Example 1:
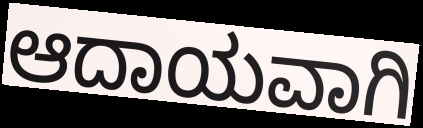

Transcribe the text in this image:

ಆದಾಯವಾಗಿ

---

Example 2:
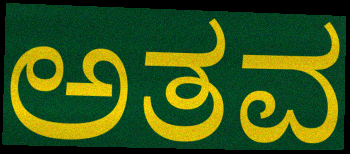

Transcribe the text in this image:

ಅತವ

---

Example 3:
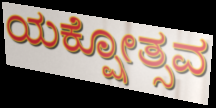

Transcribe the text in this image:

ಯಕ್ಷೋತ್ಸವ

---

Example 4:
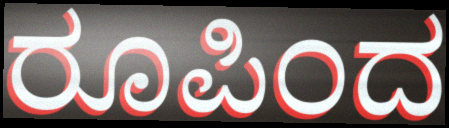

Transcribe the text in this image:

ರೂಪಿಂದ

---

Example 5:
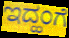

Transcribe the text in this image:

ಇದ್ಹಂಗೆ